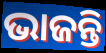
ଭାଜନ୍ତି